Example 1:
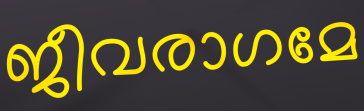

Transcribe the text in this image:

ജീവരാഗമേ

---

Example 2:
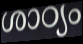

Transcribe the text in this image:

ശാഠ്യം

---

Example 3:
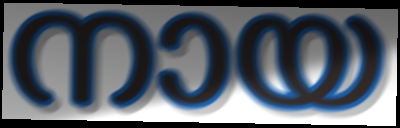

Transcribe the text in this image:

നായ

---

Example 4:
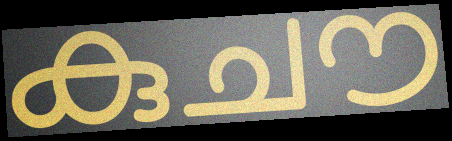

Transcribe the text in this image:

കുചൗ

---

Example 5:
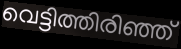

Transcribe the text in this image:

വെട്ടിത്തിരിഞ്ഞ്